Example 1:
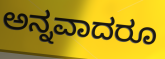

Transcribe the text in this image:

ಅನ್ನವಾದರೂ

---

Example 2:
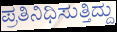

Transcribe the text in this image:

ಪ್ರತಿನಿಧಿಸುತ್ತಿದ್ದು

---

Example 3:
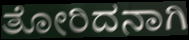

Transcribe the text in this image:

ತೋರಿದನಾಗಿ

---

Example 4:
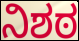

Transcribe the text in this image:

ನಿಶಠ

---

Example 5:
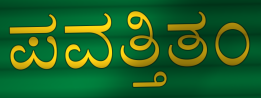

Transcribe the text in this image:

ಪವತ್ತಿತಂ